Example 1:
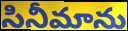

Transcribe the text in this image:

సినీమాను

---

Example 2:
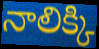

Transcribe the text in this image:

నాలిక్కి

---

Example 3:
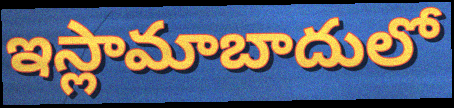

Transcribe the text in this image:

ఇస్లామాబాదులో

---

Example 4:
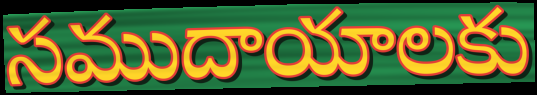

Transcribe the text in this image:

సముదాయాలకు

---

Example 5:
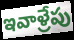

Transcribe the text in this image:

ఇవాళ్రేపు